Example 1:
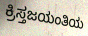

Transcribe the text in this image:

ಕ್ರಿಸ್ತಜಯಂತಿಯ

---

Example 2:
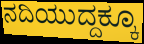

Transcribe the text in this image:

ನದಿಯುದ್ದಕ್ಕೂ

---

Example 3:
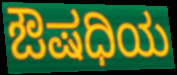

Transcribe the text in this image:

ಔಷಧಿಯ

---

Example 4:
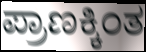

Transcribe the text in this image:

ಪ್ರಾಣಕ್ಕಿಂತ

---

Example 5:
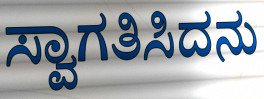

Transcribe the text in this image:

ಸ್ವಾಗತಿಸಿದನು